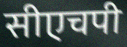
सीएचपी